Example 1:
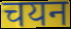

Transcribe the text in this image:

चयन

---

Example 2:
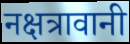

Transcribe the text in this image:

नक्षत्रावानी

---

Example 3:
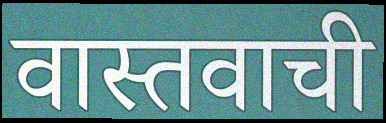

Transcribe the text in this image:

वास्तवाची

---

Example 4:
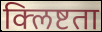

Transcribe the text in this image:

क्‍लिष्टता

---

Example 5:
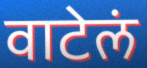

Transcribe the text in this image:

वाटेलं